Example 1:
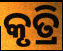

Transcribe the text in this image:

କୃତ୍ରି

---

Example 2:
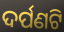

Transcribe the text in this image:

ଦର୍ପଣଟି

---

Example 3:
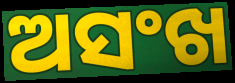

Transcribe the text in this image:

ଅସଂଖ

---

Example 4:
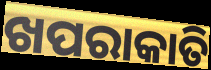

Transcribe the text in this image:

ଖପରାକାତି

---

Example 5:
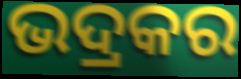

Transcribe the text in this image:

ଭଦ୍ରକର